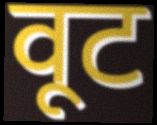
वूट